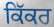
ਕਿੱਕਰ